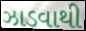
ઝાડવાથી